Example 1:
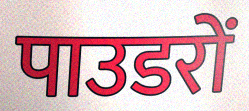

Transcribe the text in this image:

पाउडरों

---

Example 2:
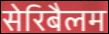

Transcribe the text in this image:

सेरिबैलम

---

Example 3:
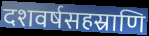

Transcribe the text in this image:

दशवर्षसहस्राणि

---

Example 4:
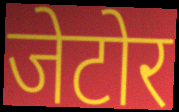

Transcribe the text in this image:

जेटोर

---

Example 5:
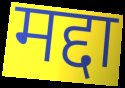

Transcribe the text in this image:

मद्दा